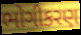
ભોગીકરણ